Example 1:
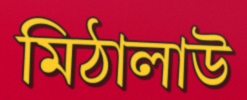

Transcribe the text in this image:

মিঠালাউ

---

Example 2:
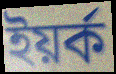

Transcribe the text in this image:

ইয়ৰ্ক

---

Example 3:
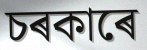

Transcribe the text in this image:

চৰকাৰে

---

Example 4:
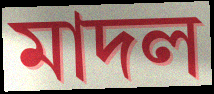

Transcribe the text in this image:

মাদল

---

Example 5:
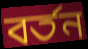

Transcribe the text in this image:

বৰ্তন